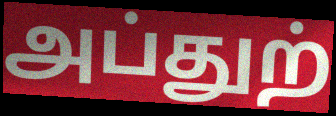
அப்துற்